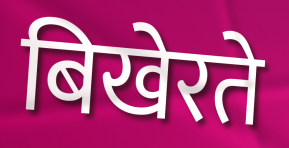
बिखेरते